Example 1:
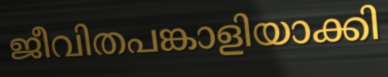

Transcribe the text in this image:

ജീവിതപങ്കാളിയാക്കി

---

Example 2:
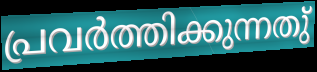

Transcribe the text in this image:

പ്രവർത്തിക്കുന്നതു്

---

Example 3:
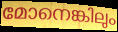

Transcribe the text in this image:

മോനെങ്കിലും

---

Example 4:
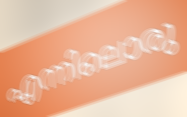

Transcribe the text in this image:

എന്നിലൊരു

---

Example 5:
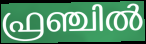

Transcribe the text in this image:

ഫ്രഞ്ചിൽ